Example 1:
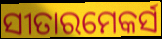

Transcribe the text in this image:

ସୀତାରମେକର୍ସ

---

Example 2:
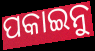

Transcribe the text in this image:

ପକାଇନୁ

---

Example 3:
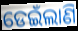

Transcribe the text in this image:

ଡେଇଁଲାଣି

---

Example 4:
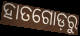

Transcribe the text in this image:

ହାତଗୋଡ଼ରୁ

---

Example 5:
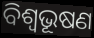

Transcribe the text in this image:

ବିଶ୍ୱଭୂଷଣ